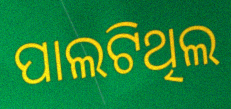
ପାଲଟିଥିଲ